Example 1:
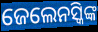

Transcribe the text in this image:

ଜେଲେନସ୍କିଙ୍କ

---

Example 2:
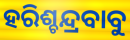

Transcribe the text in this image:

ହରିଶ୍ଚନ୍ଦ୍ରବାବୁ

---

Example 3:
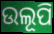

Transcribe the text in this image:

ଉଲୂପି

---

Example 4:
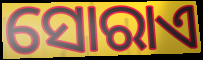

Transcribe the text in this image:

ସୋରାଏ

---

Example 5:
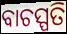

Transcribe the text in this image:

ବାଚସ୍ପତି